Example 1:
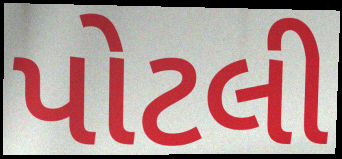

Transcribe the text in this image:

પોટલી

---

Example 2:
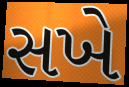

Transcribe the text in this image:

સખે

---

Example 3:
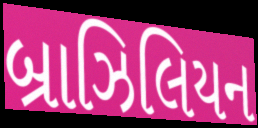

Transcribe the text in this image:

બ્રાઝિલિયન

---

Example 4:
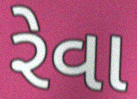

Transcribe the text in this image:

રેવા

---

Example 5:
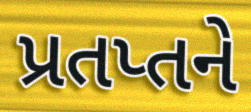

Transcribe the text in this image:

પ્રતપ્તને